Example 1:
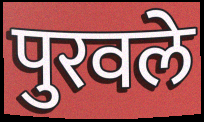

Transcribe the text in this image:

पुरवले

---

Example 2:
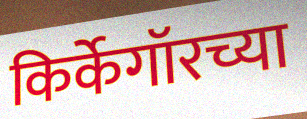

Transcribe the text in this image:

किर्केगॉरच्या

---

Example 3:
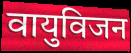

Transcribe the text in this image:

वायुविजन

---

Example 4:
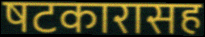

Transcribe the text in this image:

षटकारासह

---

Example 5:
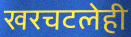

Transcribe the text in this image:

खरचटलेही